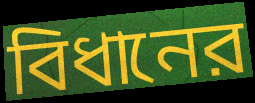
বিধানের